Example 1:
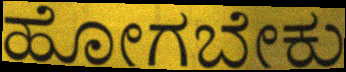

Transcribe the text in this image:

ಹೋಗಬೇಕು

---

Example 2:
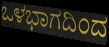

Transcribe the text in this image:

ಒಳಭಾಗದಿಂದ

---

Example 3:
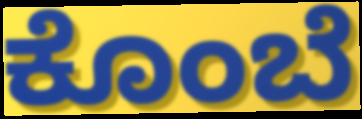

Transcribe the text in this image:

ಕೊಂಬೆ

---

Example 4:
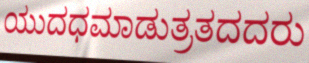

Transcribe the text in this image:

ಯುದಧಮಾಡುತ್ರತದದರು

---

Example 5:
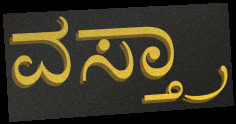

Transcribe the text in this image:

ವಸ್ತ್ರಾ